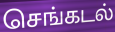
செங்கடல்